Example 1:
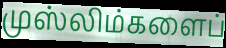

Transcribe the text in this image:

முஸ்லிம்களைப்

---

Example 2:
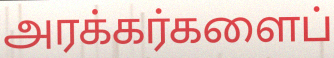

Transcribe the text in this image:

அரக்கர்களைப்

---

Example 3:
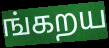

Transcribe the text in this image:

ங்கறய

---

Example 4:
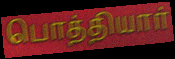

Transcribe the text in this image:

பொத்தியார்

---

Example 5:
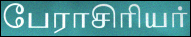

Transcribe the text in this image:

பேராசிரியர்